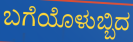
ಬಗೆಯೊಳುಬ್ಬಿದ